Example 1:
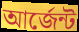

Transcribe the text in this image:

আর্জেন্ট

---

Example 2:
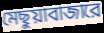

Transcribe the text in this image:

মেছুয়াবাজারে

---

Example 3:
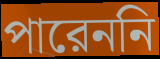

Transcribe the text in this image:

পারেননি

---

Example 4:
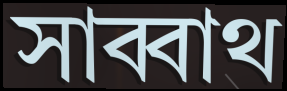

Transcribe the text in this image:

সাব্বাথ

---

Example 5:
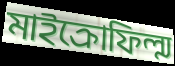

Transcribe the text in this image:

মাইক্রোফিল্ম